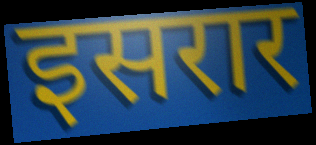
इसरार